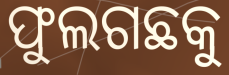
ଫୁଲଗଛକୁ